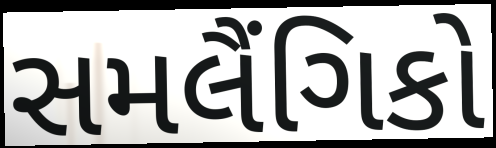
સમલૈંગિકો